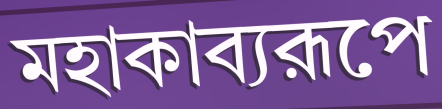
মহাকাব্যরূপে